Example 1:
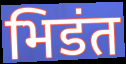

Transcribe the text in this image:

भिडंत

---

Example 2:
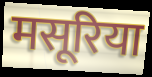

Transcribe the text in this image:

मसूरिया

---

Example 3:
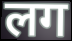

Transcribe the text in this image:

लग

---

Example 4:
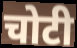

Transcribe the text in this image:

चोटी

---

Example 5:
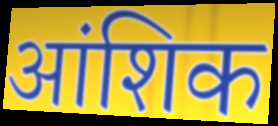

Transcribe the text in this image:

आंशिक